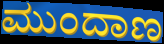
ಮುಂದಾಣ